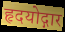
हृदयोद्गार